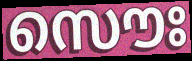
സൌഃ